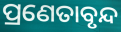
ପ୍ରଣେତାବୃନ୍ଦ